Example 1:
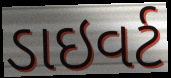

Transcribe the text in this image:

ડાઇવર્ટ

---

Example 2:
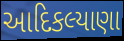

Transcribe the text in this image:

આદિકલ્યાણા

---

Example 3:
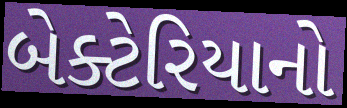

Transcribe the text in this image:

બેક્ટેરિયાનો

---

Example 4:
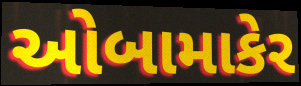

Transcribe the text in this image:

ઓબામાકેર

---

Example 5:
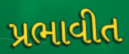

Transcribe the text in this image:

પ્રભાવીત